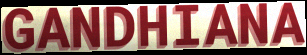
GANDHIANA